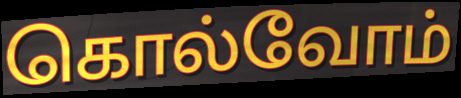
கொல்வோம்